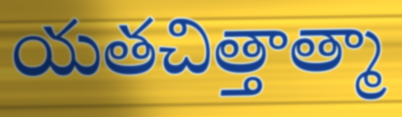
యతచిత్తాత్మా